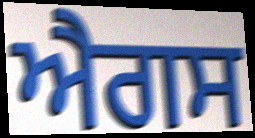
ਐਗਸ